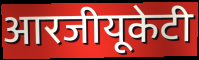
आरजीयूकेटी